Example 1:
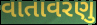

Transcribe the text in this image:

વાતાવરણુ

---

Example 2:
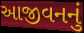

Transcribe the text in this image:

આજીવનનું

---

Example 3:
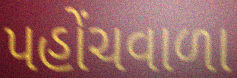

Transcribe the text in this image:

પહોંચવાળા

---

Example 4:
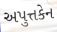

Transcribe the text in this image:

અપુત્તકેન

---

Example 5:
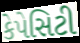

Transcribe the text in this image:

કેપેસિટી